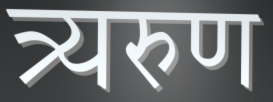
त्र्यरुण